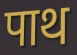
पाथ